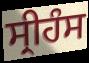
ਸ੍ਰੀਹੰਸ